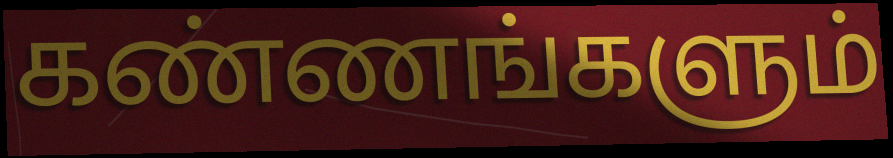
கண்ணங்களும்